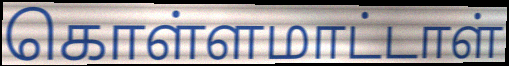
கொள்ளமாட்டாள்